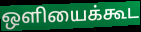
ஒளியைக்கூட